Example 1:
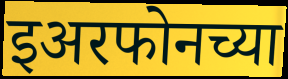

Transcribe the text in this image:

इअरफोनच्या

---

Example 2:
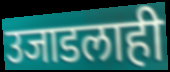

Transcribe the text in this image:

उजाडलाही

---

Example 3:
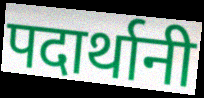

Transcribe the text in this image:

पदार्थानी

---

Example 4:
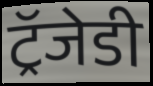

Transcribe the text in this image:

ट्रॅजेडी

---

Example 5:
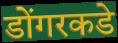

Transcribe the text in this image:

डोंगरकडे